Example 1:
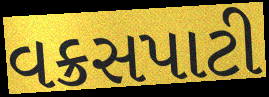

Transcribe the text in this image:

વક્રસપાટી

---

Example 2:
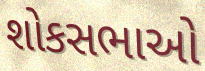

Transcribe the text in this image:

શોકસભાઓ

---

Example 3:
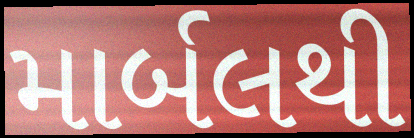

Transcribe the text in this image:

માર્બલથી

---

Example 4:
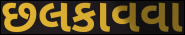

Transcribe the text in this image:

છલકાવવા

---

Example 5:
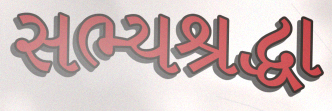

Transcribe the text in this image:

સભ્યશ્રદ્ધા